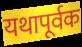
यथापूर्वक